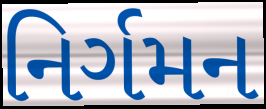
નિર્ગમન